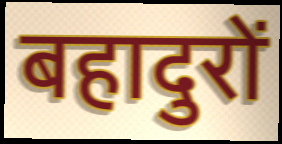
बहादुरों